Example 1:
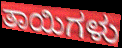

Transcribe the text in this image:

ತಾಯಿಗಳು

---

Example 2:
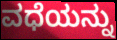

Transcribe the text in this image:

ವಧೆಯನ್ನು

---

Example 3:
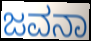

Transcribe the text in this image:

ಜವನಾ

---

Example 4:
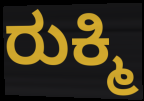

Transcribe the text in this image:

ರುಕ್ಮಿ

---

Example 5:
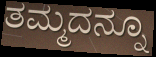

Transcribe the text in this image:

ತಮ್ಮದನ್ನೂ